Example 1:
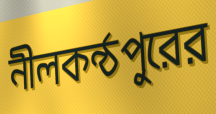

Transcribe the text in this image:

নীলকন্ঠপুরের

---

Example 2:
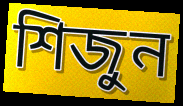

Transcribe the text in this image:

শিজুন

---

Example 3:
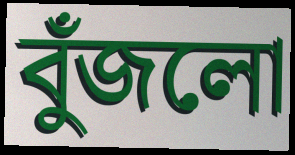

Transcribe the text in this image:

বুঁজলো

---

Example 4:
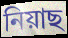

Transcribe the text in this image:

নিয়াছ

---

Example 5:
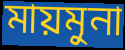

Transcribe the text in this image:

মায়মুনা